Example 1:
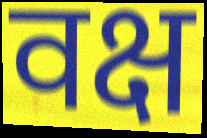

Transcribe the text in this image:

वक्ष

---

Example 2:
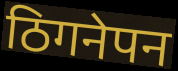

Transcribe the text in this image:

ठिगनेपन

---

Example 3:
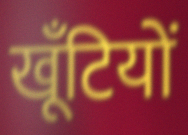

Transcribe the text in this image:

खूँटियों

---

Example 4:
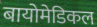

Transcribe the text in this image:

बायोमेडिकल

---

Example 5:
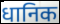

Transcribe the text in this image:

धानिक